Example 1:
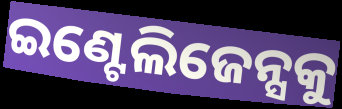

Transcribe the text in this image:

ଇଣ୍ଟେଲିଜେନ୍ସକୁ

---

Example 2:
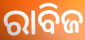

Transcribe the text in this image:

ରାବିଜ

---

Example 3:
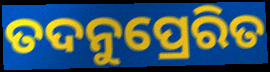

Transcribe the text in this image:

ତଦନୁପ୍ରେରିତ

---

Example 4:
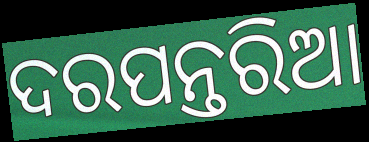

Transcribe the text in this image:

ଦରପନ୍ତରିଆ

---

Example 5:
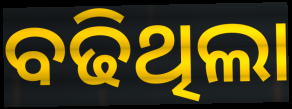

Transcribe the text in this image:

ବଢିଥିଲା